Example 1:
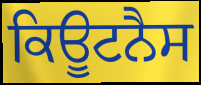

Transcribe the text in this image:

ਕਿਊਟਨੈਸ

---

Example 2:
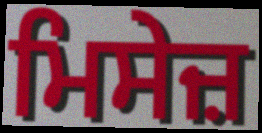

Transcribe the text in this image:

ਮਿਸੇਜ਼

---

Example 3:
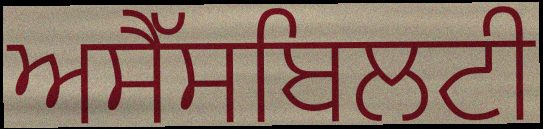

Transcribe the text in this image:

ਅਸੈੱਸਬਿਲਟੀ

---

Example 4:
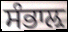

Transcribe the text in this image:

ਸੰਭਾਲ਼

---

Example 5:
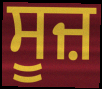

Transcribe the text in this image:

ਸੂਜ਼